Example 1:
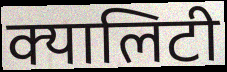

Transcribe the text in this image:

क्यालिटी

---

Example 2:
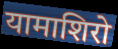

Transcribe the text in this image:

यामाशिरो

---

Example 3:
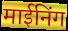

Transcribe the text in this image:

माईनिंग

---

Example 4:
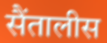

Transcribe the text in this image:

सैंतालीस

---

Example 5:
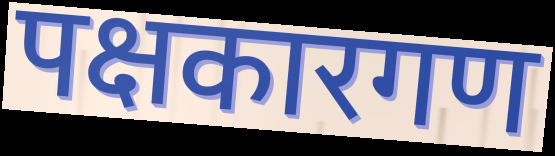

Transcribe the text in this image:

पक्षकारगण